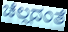
ಚೆಲ್ಲದಂತೆ